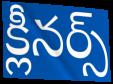
క్లీనర్స్